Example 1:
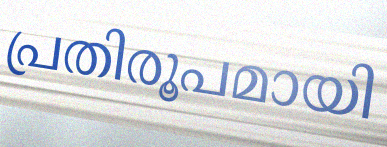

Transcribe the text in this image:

പ്രതിരൂപമായി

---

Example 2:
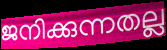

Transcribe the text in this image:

ജനിക്കുന്നതല്ല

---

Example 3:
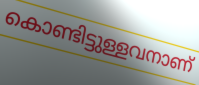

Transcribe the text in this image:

കൊണ്ടിട്ടുള്ളവനാണ്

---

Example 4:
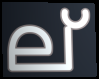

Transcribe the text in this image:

ല്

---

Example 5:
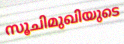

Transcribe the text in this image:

സൂചിമുഖിയുടെ